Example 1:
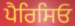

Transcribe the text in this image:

ਪੈਰਿਸਿਓ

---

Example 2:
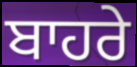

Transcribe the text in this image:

ਬਾਹਰੇ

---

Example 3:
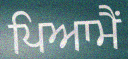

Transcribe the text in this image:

ਪਿਆਮੈਂ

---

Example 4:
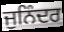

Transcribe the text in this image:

ਜੁਨਿੰਦਰ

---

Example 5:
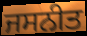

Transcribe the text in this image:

ਜਸਨੀਤ